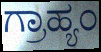
ಗ್ರಾಹ್ಯಂ